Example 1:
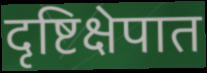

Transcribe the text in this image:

दृष्टिक्षेपात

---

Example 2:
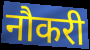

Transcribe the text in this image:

नौकरी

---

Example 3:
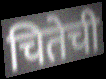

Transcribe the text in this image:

चितेची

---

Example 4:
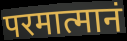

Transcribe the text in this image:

परमात्मानं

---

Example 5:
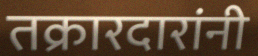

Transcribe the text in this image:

तक्रारदारांनी